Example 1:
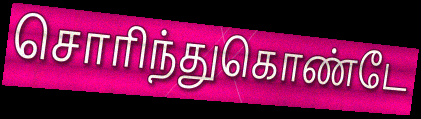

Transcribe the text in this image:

சொரிந்துகொண்டே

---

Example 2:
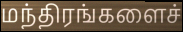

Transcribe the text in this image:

மந்திரங்களைச்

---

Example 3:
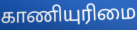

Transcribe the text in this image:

காணியுரிமை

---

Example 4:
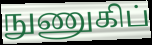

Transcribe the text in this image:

நுணுகிப்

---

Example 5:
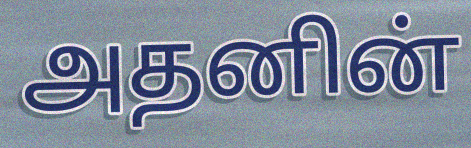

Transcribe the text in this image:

அதனின்